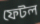
ফেটল